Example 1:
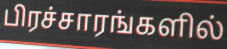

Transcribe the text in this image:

பிரச்சாரங்களில்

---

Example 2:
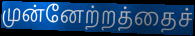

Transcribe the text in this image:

முன்னேற்றத்தைச்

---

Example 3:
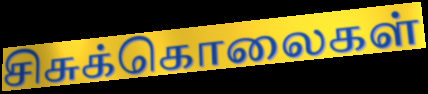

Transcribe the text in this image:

சிசுக்கொலைகள்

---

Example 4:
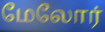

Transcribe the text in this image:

மேலோர்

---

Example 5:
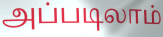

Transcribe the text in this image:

அப்படிலாம்